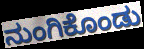
ನುಂಗಿಕೊಂಡು